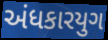
અંધકારયુગ